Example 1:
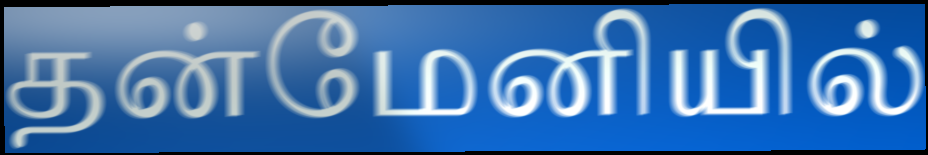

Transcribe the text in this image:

தன்மேனியில்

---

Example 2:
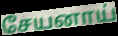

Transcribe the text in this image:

சேயனாய்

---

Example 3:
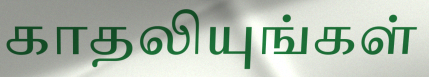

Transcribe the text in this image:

காதலியுங்கள்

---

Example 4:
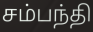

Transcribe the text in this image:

சம்பந்தி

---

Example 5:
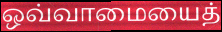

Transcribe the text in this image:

ஒவ்வாமையைத்